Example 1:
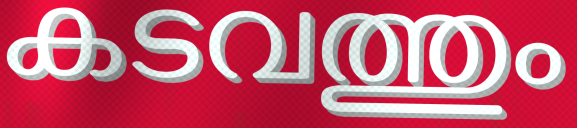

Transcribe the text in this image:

കടവത്തും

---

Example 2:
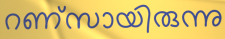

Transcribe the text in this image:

റണ്സായിരുന്നു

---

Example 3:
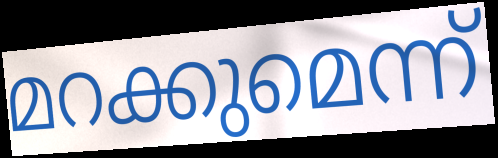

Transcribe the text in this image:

മറക്കുമെന്ന്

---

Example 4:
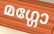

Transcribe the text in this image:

മഗ്ഗോ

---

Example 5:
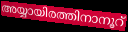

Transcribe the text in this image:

അയ്യായിരത്തിനാനൂറ്